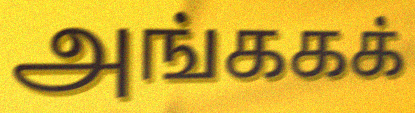
அங்ககக்